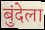
बुंदेला